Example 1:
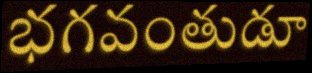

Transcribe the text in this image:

భగవంతుడూ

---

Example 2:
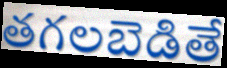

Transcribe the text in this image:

తగలబెడితే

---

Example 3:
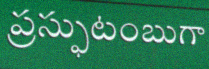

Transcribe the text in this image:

ప్రస్ఫుటంబుగా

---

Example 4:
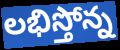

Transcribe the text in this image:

లభిస్తోన్న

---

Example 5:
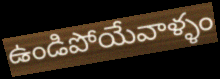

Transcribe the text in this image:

ఉండిపోయేవాళ్ళం